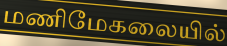
மணிமேகலையில்